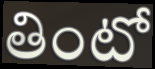
తింటో